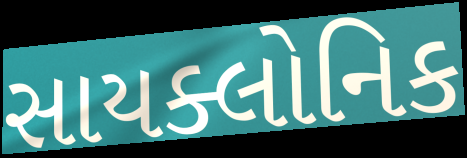
સાયક્લોનિક